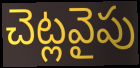
చెట్లవైపు